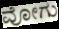
ವೋಗು